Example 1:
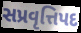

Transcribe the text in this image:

સપ્રવૃત્તિપદ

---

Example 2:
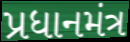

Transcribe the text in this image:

પ્રધાનમંત્ર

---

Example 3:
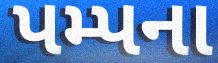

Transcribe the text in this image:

પમ્પના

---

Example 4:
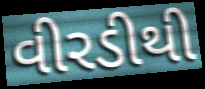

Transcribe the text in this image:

વીરડીથી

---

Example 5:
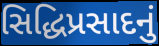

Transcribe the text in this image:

સિદ્ધિપ્રસાદનું